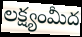
లక్ష్యంమీద